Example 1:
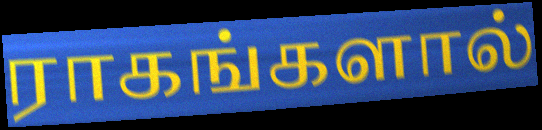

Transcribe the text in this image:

ராகங்களால்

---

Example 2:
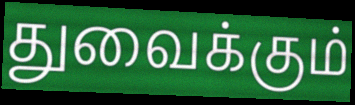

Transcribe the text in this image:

துவைக்கும்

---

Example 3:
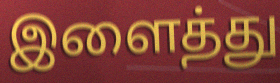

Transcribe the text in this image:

இளைத்து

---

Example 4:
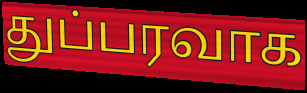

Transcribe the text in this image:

துப்பரவாக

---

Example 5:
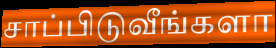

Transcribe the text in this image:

சாப்பிடுவீங்களா